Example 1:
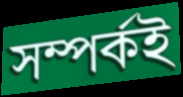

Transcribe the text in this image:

সম্পৰ্কই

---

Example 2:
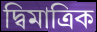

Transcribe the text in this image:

দ্বিমাত্ৰিক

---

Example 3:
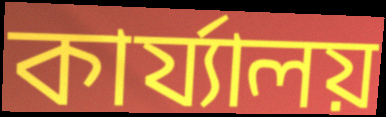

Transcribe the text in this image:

কাৰ্য্যালয়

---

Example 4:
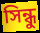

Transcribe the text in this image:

সিন্ধু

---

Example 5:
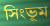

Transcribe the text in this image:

সিংভূম